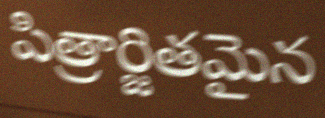
పిత్రార్జితమైన